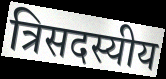
त्रिसदस्यीय